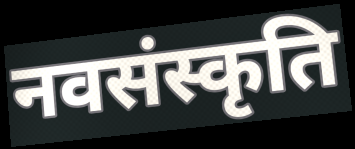
नवसंस्कृति